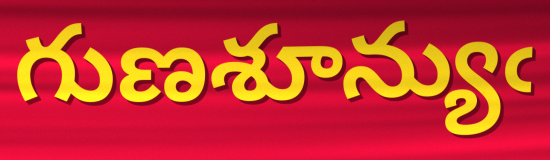
గుణశూన్యుఁ